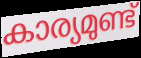
കാര്യമുണ്ട്